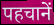
पहचानें